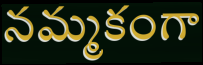
నమ్మకంగా